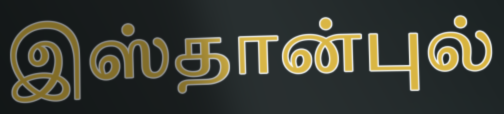
இஸ்தான்புல்